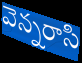
వెన్నరాసి